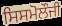
ਸਿਸਮੋਲੌਜੀ